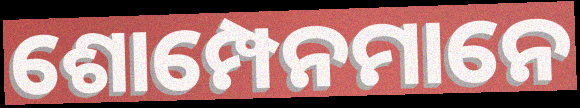
ଶୋମ୍ପେନମାନେ